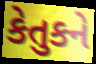
કેતુકને